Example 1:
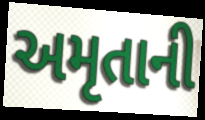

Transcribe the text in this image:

અમૃતાની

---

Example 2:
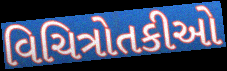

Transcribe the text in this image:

વિચિત્રોતકીઓ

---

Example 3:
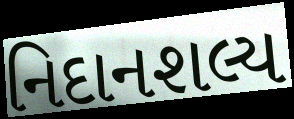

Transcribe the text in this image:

નિદાનશલ્ય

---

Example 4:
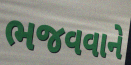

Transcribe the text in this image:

ભજવવાને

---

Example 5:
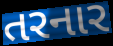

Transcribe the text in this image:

તરનાર